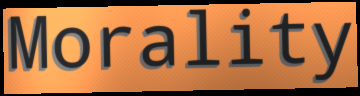
Morality